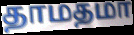
தாமதமா